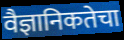
वैज्ञानिकतेचा